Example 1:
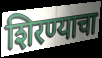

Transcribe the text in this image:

शिरण्याचा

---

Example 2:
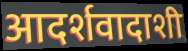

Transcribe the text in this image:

आदर्शवादाशी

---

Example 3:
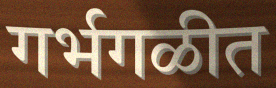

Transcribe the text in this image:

गर्भगळीत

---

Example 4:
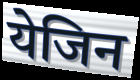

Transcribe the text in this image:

येजिन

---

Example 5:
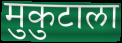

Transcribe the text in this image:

मुकुटाला